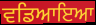
ਵਡਿਆਇਆ